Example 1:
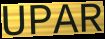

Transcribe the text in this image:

UPAR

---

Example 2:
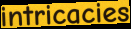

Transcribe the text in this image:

intricacies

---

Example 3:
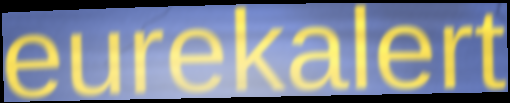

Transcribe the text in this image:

eurekalert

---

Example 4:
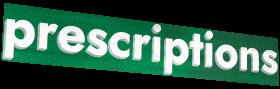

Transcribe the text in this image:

prescriptions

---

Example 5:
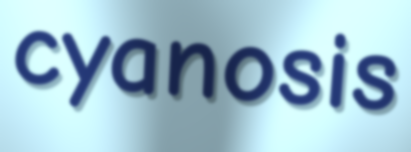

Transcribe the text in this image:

cyanosis